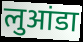
लुआंडा